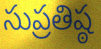
సుప్రతిష్ఠ